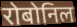
रोबोनिल